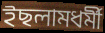
ইছলামধৰ্মী